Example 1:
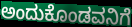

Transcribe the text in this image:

ಅಂದುಕೊಂಡವನಿಗೆ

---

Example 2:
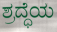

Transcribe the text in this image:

ಶ್ರದ್ಧೆಯ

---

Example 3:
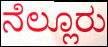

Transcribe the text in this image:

ನೆಲ್ಲೂರು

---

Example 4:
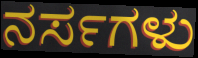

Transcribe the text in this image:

ನರ್ಸಗಳು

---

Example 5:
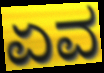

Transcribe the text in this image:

ಏವ